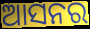
ଆସନର